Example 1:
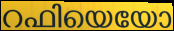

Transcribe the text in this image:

റഫിയെയോ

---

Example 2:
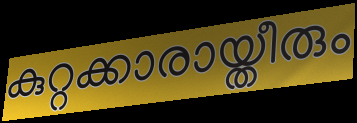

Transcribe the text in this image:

കുറ്റക്കാരായ്തീരും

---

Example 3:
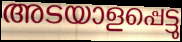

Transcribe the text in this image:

അടയാളപ്പെട്ടു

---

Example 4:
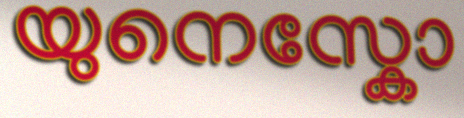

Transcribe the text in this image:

യുനെസ്കോ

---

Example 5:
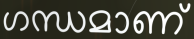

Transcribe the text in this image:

ഗന്ധമാണ്